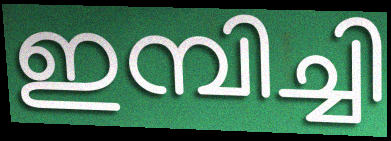
ഇമ്പിച്ചി